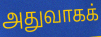
அதுவாகக்